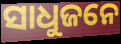
ସାଧୁଜନେ